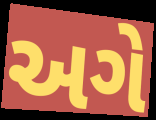
અગે